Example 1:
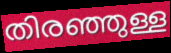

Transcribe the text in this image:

തിരഞ്ഞുള്ള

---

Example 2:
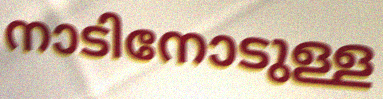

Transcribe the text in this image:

നാടിനോടുള്ള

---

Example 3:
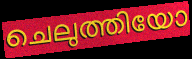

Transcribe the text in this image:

ചെലുത്തിയോ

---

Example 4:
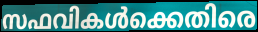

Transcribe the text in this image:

സഫവികൾക്കെതിരെ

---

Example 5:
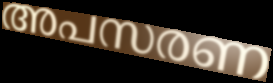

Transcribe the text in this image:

അപസരണ